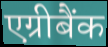
एग्रीबैंक